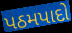
પઠમપાદો